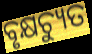
ବୃକ୍ଷଚ୍ଯୁତ